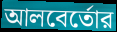
আলবের্তোর